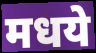
मधये